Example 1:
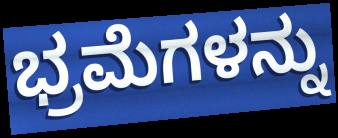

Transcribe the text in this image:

ಭ್ರಮೆಗಳನ್ನು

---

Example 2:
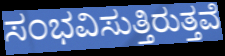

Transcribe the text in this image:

ಸಂಭವಿಸುತ್ತಿರುತ್ತವೆ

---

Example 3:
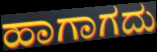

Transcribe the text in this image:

ಹಾಗಾಗದು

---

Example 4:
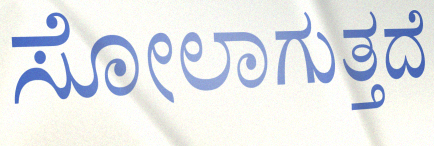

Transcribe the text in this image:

ಸೋಲಾಗುತ್ತದೆ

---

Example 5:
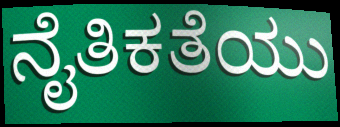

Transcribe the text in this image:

ನೈತಿಕತೆಯು